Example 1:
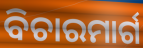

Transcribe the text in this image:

ବିଚାରମାର୍ଗ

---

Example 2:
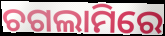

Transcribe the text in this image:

ଚଗଲାମିରେ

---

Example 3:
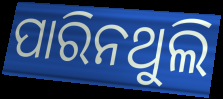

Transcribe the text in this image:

ପାରିନଥୁଲି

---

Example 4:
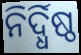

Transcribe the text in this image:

ନିର୍ଦ୍ଧିଷ୍ଠ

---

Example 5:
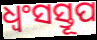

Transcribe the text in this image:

ଧ୍ୱଂସସ୍ତୂପ